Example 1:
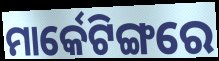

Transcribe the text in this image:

ମାର୍କେଟିଙ୍ଗରେ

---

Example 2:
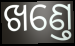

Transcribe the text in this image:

ଖଣ୍ତେ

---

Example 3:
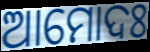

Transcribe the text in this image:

ଆମୋଦଃ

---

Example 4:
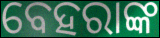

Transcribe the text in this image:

ବେହରାଙ୍କ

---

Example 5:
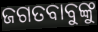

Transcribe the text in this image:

ଜଗତବାବୁଙ୍କୁ